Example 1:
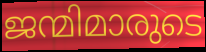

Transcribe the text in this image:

ജന്മിമാരുടെ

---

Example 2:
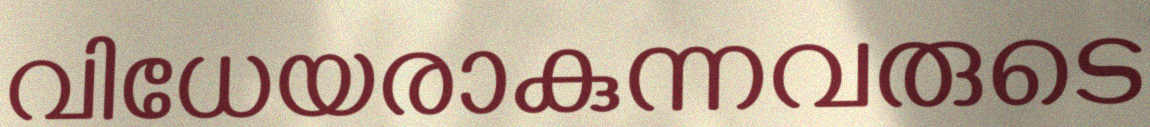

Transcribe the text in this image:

വിധേയരാകുന്നവരുടെ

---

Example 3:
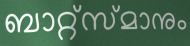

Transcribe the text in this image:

ബാറ്റ്സ്മാനും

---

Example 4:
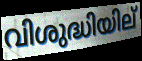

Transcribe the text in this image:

വിശുദ്ധിയില്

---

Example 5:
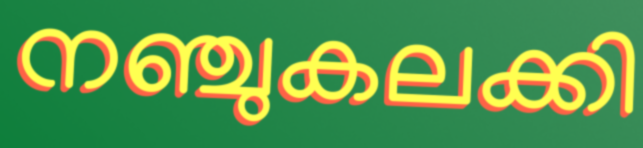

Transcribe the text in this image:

നഞ്ചുകലക്കി